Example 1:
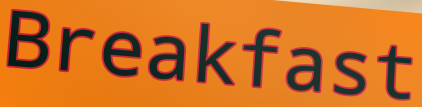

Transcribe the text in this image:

Breakfast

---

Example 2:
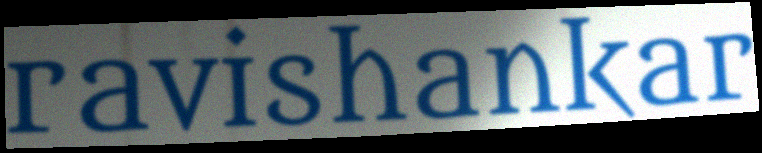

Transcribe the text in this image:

ravishankar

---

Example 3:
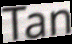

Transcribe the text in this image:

Tan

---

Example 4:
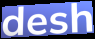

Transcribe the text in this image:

desh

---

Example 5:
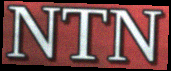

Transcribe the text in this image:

NTN